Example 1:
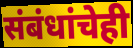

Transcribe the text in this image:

संबंधांचेही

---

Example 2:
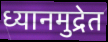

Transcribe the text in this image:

ध्यानमुद्रेत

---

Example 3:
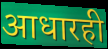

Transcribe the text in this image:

आधारही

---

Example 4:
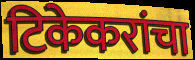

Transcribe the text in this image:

टिकेकरांचा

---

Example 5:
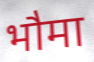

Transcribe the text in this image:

भौमा